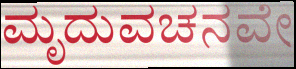
ಮೃದುವಚನವೇ